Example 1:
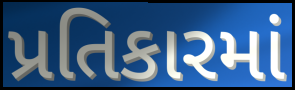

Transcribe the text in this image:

પ્રતિકારમાં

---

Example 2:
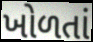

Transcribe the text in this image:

ખોળતાં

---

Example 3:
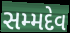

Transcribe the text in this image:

સમ્મદેવ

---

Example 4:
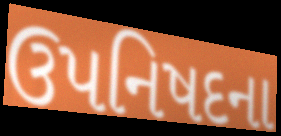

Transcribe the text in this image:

ઉપનિષદના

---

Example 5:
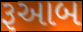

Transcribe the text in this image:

રૂઆબ